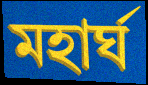
মহার্ঘ